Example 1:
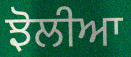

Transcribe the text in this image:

ਝੋਲੀਆ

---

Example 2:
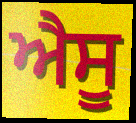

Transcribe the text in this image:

ਐਸੂ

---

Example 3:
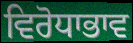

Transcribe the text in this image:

ਵਿਰੋਧਾਭਾਵ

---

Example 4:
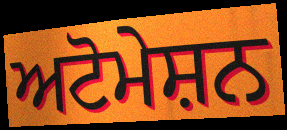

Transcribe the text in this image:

ਅਟੋਮੇਸ਼ਨ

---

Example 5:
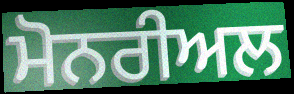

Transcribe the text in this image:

ਮੋਨਰੀਅਲ